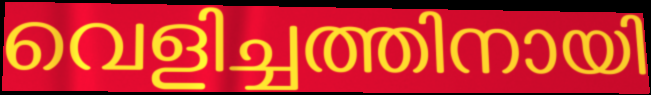
വെളിച്ചത്തിനായി